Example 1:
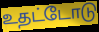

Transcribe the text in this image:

உதட்டோடு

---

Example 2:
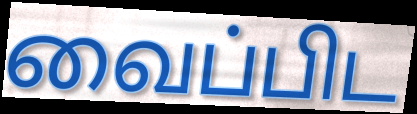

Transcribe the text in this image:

வைப்பிட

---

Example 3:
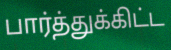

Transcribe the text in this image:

பார்த்துக்கிட்ட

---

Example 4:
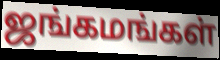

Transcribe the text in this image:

ஜங்கமங்கள்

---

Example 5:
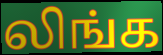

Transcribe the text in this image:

லிங்க